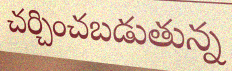
చర్చించబడుతున్న